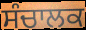
ਸੰਚਾਲਕ